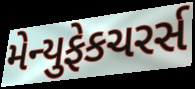
મેન્યુફેકચરર્સ